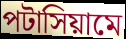
পটাসিয়ামে